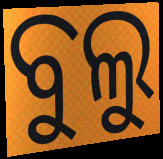
ବୁଲୁ